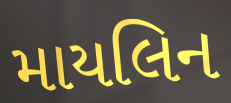
માયલિન